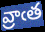
వ్రాఁత